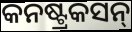
କନଷ୍ଟ୍ରକସନ୍